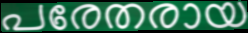
പരേതരായ